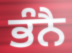
ਭੰਨੈ